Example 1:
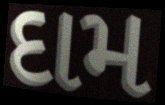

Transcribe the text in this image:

દામ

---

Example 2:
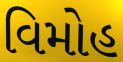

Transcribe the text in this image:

વિમોહ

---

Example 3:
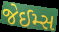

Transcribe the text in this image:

જેઈમ્સ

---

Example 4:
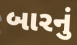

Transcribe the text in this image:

બારનું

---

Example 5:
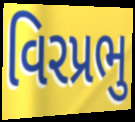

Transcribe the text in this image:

વિરપ્રભુ